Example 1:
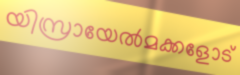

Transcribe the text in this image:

യിസ്രായേൽമക്കളോട്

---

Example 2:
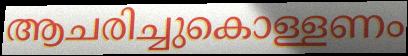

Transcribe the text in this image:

ആചരിച്ചുകൊള്ളണം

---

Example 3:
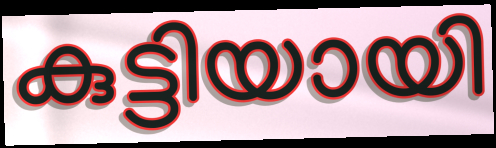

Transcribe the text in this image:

കുട്ടിയായി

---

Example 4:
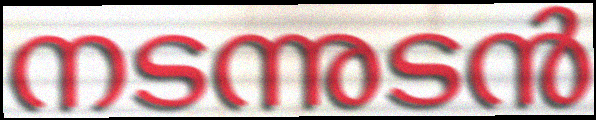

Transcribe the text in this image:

നടന്നുടൻ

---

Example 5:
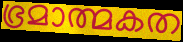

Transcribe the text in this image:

ഭ്രമാത്മകത